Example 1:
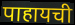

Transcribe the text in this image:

पाहायची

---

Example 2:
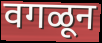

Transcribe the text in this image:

वगळून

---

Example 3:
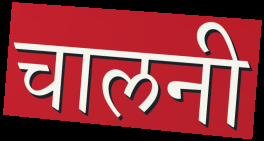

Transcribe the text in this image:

चालनी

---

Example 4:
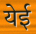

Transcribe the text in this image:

येई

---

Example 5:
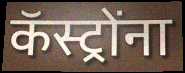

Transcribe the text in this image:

कॅस्ट्रोंना